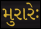
મુરારેઃ